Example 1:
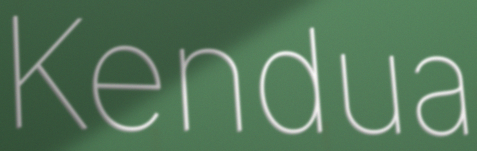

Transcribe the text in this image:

Kendua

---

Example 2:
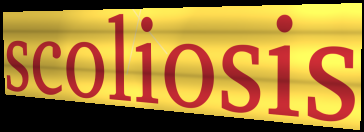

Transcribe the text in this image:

scoliosis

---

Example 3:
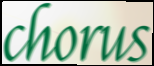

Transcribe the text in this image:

chorus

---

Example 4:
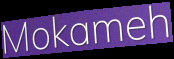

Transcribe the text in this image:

Mokameh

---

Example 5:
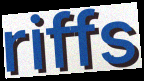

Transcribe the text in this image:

riffs